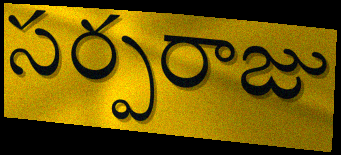
సర్పరాజు